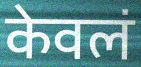
केवलं